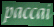
paccai